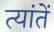
त्यांतें